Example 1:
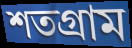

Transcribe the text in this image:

শতগ্রাম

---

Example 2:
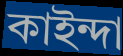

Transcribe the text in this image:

কাইন্দা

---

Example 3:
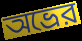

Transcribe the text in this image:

অভ্রের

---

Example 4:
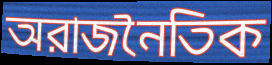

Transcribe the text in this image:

অরাজনৈতিক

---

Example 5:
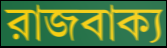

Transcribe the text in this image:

রাজবাক্য